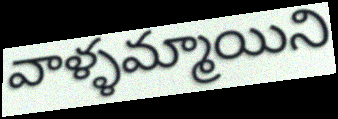
వాళ్ళమ్మాయిని